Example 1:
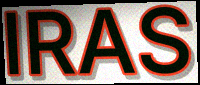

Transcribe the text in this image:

IRAS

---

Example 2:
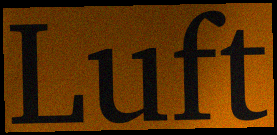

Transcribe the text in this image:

Luft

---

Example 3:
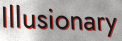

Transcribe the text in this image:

Illusionary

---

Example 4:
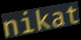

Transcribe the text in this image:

nikat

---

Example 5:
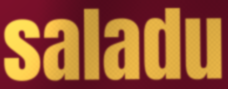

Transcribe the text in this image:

saladu